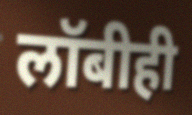
लॉबीही